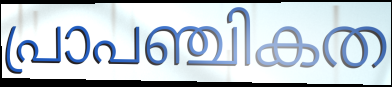
പ്രാപഞ്ചികത